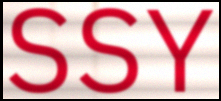
SSY